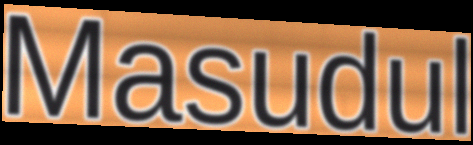
Masudul